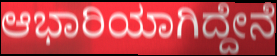
ಆಭಾರಿಯಾಗಿದ್ದೇನೆ